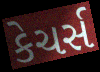
કેચર્સ